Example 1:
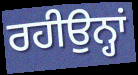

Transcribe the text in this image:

ਰਹੀਉਨ੍ਹਾਂ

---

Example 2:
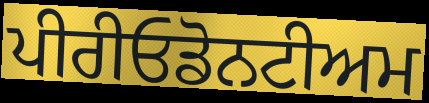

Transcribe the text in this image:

ਪੀਰੀਓਡੋਨਟੀਅਮ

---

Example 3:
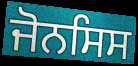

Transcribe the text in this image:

ਜੋਨਸਿਸ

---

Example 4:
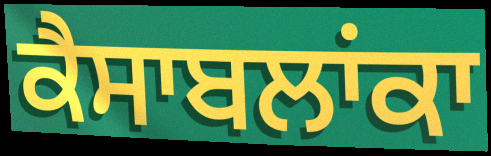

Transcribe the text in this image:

ਕੈਸਾਬਲਾਂਕਾ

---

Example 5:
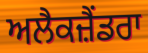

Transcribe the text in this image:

ਅਲੈਕਜ਼ੈਂਡਰਾ